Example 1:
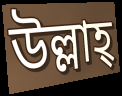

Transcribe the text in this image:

উল্লাহ্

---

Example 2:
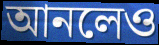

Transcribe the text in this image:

আনলেও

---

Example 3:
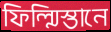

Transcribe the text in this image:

ফিল্মিস্তানে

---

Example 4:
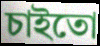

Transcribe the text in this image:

চাইতো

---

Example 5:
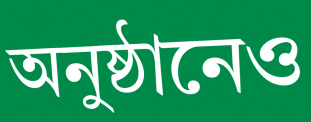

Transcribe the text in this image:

অনুষ্ঠানেও